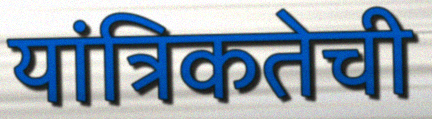
यांत्रिकतेची